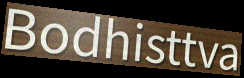
Bodhisttva